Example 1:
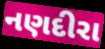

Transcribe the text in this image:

નણદીરા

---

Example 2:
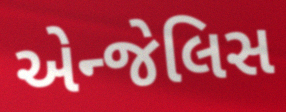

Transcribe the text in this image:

એન્જેલિસ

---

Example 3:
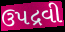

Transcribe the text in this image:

ઉપદ્રવી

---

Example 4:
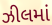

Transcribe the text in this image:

ઝીલમાં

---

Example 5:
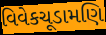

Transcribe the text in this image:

વિવેકચૂડામણિ